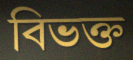
বিভক্ত